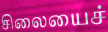
சிலையைச்